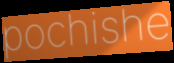
pochishe